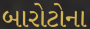
બારોટોના